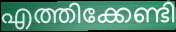
എത്തിക്കേണ്ടി